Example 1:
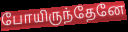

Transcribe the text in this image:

போயிருந்தேனே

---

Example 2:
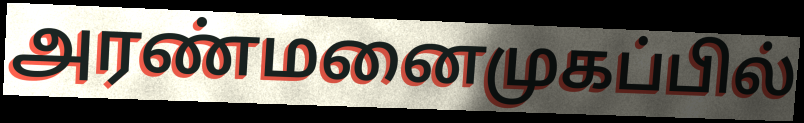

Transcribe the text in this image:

அரண்மனைமுகப்பில்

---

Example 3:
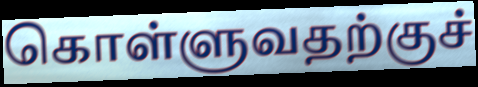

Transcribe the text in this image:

கொள்ளுவதற்குச்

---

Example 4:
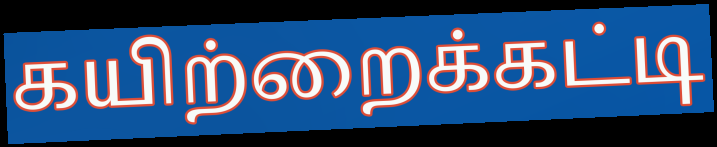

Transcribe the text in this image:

கயிற்றைக்கட்டி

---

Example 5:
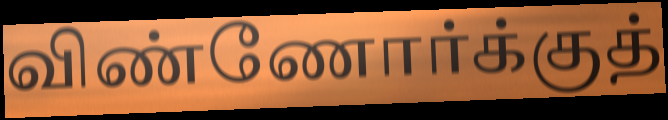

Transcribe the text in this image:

விண்ணோர்க்குத்